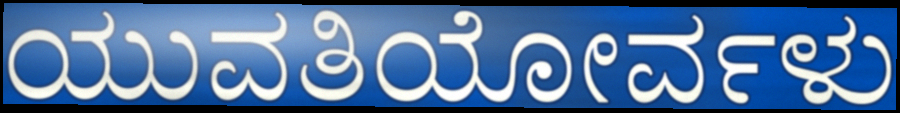
ಯುವತಿಯೋರ್ವಳು